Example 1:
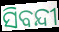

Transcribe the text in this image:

ସିବନ୍ଦୀ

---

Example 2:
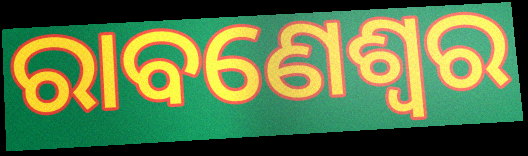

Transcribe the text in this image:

ରାବଣେଶ୍ୱର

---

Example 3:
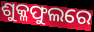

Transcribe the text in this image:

ଶୁକ୍ଳଫୁଲରେ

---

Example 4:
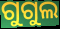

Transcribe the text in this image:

ଗୁଗୁଲ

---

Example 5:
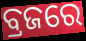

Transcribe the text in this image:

ବ୍ରଜରେ